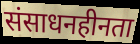
संसाधनहीनता